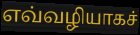
எவ்வழியாகச்